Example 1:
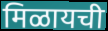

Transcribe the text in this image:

मिळायची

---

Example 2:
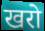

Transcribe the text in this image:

खरो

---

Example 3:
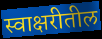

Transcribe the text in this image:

स्वाक्षरीतील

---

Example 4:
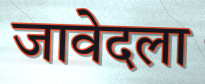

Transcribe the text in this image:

जावेदला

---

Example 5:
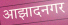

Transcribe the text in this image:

आझादनगर